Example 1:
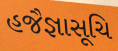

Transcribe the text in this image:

હજૈજ્ઞાસૂચિ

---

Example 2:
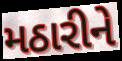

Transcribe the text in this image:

મઠારીને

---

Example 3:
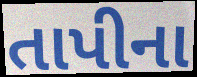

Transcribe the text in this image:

તાપીના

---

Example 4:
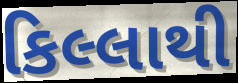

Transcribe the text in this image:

કિલ્લાથી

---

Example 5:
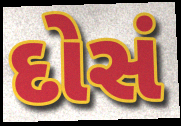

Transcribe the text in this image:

દોસં